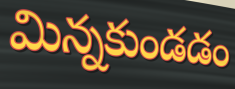
మిన్నకుండడం